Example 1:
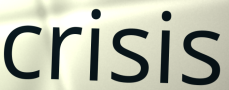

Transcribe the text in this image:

crisis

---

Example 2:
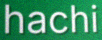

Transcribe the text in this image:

hachi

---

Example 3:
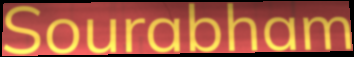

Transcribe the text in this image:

Sourabham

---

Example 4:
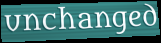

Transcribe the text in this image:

unchanged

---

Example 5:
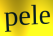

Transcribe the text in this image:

pele